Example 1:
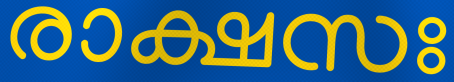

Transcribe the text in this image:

രാക്ഷസഃ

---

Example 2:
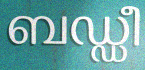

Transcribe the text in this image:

ബഡ്ഡീ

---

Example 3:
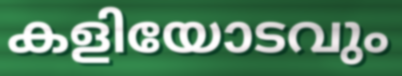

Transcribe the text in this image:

കളിയോടവും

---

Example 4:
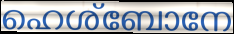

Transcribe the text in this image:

ഹെശ്ബോനേ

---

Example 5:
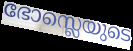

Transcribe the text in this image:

ഭോസ്ലെയുടെ